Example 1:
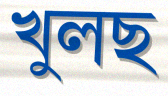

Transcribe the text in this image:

খুলছ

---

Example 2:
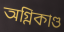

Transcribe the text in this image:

অগ্নিকাণ্ড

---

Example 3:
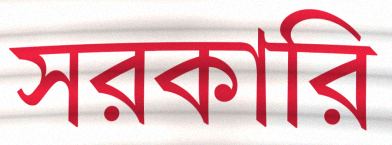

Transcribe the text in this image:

সরকারি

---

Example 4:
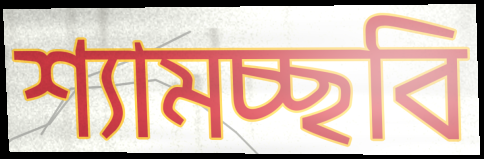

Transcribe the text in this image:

শ্যামচ্ছবি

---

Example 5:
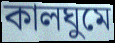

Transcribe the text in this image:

কালঘুমে